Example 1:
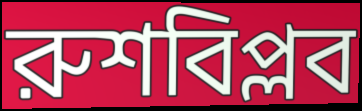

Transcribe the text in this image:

রুশবিপ্লব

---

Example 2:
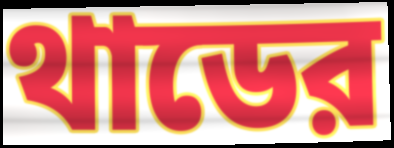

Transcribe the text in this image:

থাডের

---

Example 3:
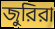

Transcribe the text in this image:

জুরিরা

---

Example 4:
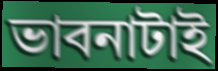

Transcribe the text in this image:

ভাবনাটাই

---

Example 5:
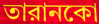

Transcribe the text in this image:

তারানকো